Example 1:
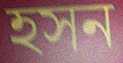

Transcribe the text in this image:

হসন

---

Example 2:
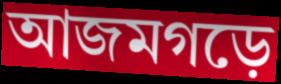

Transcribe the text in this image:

আজমগড়ে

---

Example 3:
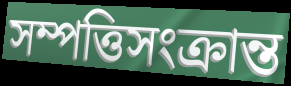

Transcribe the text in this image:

সম্পত্তিসংক্রান্ত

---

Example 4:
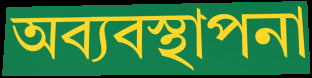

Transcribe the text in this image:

অব্যবস্থাপনা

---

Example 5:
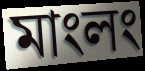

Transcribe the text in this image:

মাংলং